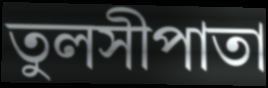
তুলসীপাতা